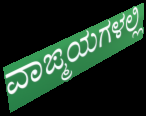
ವಾಙ್ಮಯಗಳಲ್ಲಿ